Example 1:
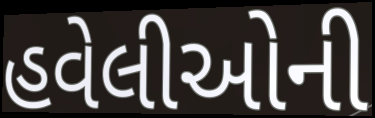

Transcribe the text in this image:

હવેલીઓની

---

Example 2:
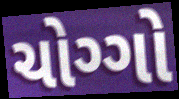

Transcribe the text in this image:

ચોગ્ગો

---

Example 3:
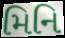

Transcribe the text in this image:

મિનિ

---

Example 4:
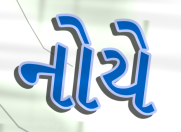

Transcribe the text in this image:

નોયે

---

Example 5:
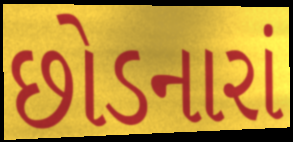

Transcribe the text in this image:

છોડનારાં